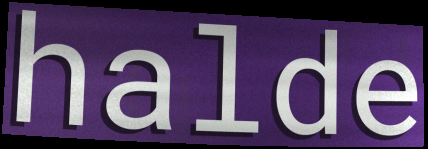
halde